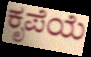
ಕೃಪೆಯೆ